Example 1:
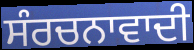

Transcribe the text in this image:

ਸੰਰਚਨਾਵਾਦੀ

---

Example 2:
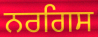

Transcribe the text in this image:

ਨਰਗਿਸ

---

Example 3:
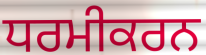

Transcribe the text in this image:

ਧਰਮੀਕਰਨ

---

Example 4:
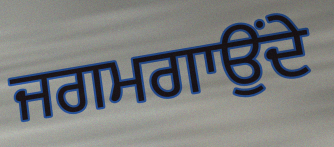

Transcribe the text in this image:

ਜਗਮਗਾਉਂਦੇ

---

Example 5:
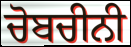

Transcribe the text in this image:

ਚੋਬਚੀਨੀ